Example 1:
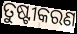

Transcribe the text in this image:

ତୁଷ୍ଟୀକରଣ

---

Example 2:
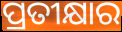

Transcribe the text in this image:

ପ୍ରତୀକ୍ଷାର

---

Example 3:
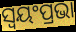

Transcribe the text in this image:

ସ୍ଵୟଂପ୍ରଭା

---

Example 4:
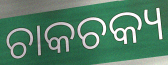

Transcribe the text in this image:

ଚାକଚକ୍ୟ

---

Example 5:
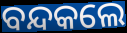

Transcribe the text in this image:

ବନ୍ଦକଲେ